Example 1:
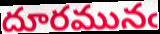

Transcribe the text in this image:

దూరమునఁ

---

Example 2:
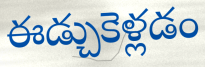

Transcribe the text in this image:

ఈడ్చుకెళ్లడం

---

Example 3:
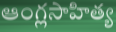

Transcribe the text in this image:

ఆంగ్లసాహిత్య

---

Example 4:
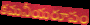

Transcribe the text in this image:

కమనీయరూపం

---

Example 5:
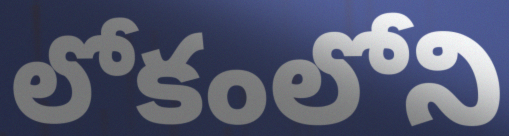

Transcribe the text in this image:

లోకంలోని